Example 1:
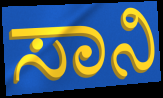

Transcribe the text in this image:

ಸಾನಿ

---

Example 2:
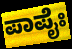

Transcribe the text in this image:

ಪಾಪೈಃ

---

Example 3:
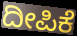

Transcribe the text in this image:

ದೀಪಿಕೆ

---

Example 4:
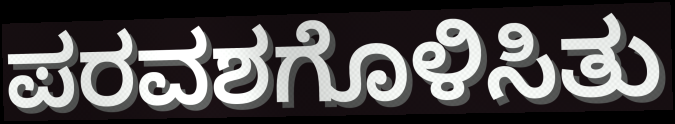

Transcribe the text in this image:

ಪರವಶಗೊಳಿಸಿತು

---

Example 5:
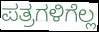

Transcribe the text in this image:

ಪತ್ರಗಳಿಗೆಲ್ಲ